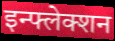
इन्फ्लेक्शन